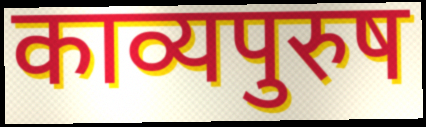
काव्यपुरुष